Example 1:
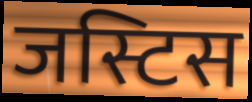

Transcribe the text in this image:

जस्टिस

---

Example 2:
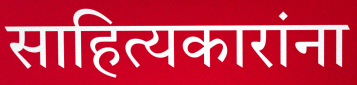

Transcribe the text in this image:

साहित्यकारांना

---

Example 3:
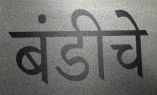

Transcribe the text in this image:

बंडीचे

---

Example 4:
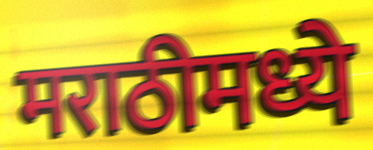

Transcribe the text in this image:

मराठीमध्ये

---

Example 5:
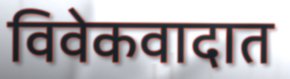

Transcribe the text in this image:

विवेकवादात